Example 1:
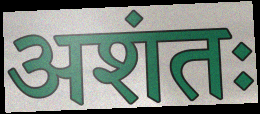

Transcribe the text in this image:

अशंतः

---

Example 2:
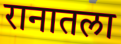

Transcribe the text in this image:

रानातला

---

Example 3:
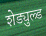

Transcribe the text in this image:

शेड्युल्ड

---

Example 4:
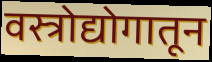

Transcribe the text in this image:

वस्त्रोद्योगातून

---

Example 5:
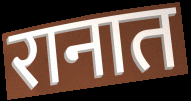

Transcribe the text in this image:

रानात